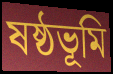
ষষ্ঠভূমি